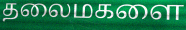
தலைமகளை